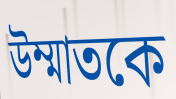
উম্মাতকে